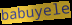
babuyele